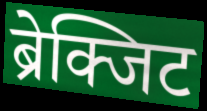
ब्रेक्जिट